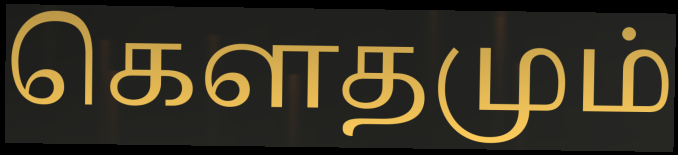
கெளதமும்